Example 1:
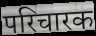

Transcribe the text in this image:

परिचारक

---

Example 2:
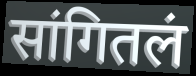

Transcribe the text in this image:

सांगितलं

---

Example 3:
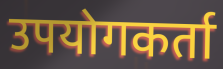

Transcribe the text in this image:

उपयोगकर्ता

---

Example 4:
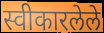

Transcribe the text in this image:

स्वीकारलेले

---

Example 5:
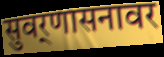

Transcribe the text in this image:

सुवर्णासनावर